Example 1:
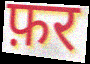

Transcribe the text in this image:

फ़र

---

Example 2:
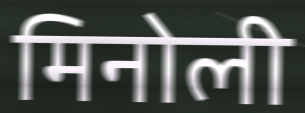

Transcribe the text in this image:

मिनोली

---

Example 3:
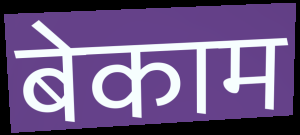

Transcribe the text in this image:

बेकाम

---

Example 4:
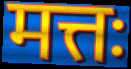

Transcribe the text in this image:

मत्तः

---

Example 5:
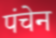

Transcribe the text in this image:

पंचेन